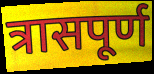
त्रासपूर्ण